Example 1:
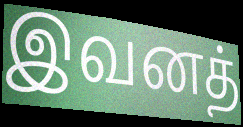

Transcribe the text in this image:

இவனத்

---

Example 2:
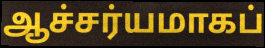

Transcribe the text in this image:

ஆச்சர்யமாகப்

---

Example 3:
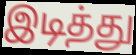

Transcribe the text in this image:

இடித்து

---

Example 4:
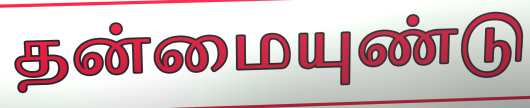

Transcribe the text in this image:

தன்மையுண்டு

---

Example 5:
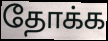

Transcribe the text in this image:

தோக்க